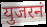
युजरनं